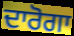
ਦਾਰੋਗਾ